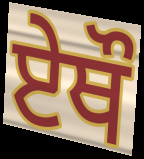
ਏਥੌ